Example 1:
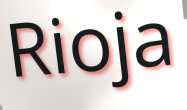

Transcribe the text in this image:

Rioja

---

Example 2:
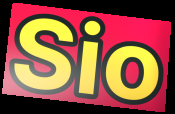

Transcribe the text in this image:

Sio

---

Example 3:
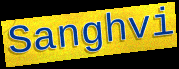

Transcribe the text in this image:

Sanghvi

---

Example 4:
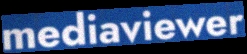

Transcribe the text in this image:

mediaviewer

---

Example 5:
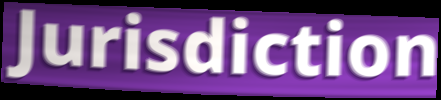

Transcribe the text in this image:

Jurisdiction